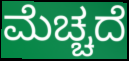
ಮೆಚ್ಚದೆ